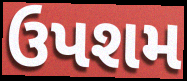
ઉપશમ